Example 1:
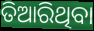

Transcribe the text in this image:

ତିଆରିଥିବା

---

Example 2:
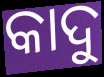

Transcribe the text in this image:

କାଦୁ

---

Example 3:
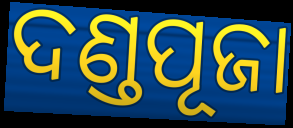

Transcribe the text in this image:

ଦଣ୍ଡପୂଜା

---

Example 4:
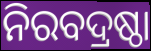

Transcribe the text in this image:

ନିରବଦ୍ରଷ୍ଠା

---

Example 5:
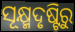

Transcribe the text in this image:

ସୂକ୍ଷ୍ମଦୃଷ୍ଟିରୁ